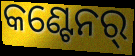
କଣ୍ଟେନର୍